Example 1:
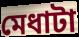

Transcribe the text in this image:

মেধাটা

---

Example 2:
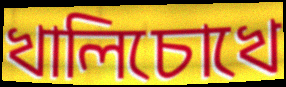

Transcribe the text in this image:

খালিচোখে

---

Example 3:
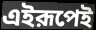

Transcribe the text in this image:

এইরূপেই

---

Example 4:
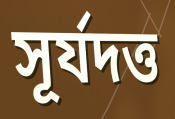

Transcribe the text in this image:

সূর্যদত্ত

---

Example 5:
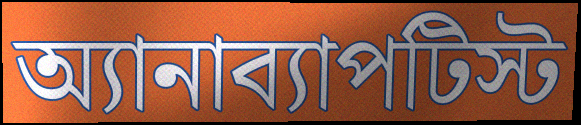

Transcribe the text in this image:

অ্যানাব্যাপটিস্ট